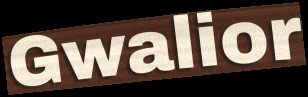
Gwalior